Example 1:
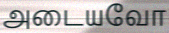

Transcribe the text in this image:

அடையவோ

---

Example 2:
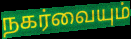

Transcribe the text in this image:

நகர்வையும்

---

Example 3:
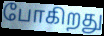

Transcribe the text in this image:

போகிறது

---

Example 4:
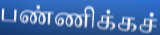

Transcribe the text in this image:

பண்ணிக்கச்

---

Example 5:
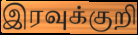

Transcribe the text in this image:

இரவுக்குறி